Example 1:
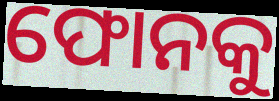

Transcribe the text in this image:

ଫୋନକୁ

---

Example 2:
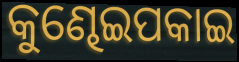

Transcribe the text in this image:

କୁଣ୍ଢେଇପକାଇ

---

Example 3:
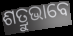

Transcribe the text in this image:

ଶତ୍ରୁଭାବେ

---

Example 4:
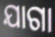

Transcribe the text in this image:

ଯାଗା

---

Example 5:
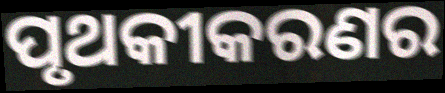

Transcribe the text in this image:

ପୃଥକୀକରଣର